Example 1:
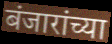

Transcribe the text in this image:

बंजारांच्या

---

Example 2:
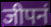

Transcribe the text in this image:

जीपनं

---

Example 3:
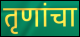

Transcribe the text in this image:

तृणांचा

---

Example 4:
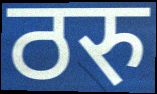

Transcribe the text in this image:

ठरु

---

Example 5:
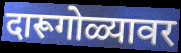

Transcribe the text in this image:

दारूगोळ्यावर